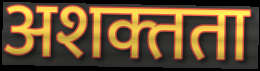
अशक्‍तता